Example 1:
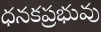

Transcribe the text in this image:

ధనకప్రభువు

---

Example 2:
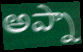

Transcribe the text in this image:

అప్నా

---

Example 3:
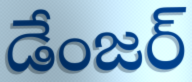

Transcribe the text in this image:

డేంజర్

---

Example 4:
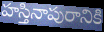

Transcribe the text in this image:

హస్తినాపురానికి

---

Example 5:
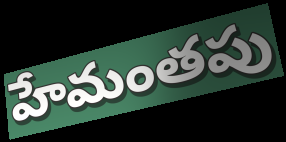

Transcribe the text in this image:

హేమంతపు